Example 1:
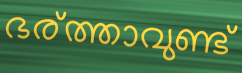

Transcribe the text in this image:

ഭര്ത്താവുണ്ട്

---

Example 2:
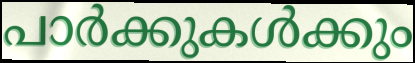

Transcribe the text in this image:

പാർക്കുകൾക്കും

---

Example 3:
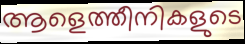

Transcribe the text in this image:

ആളെത്തീനികളുടെ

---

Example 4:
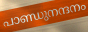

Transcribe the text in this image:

പാണ്ഡുനന്ദനം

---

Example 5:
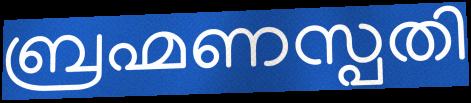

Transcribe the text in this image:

ബ്രഹ്മണസ്പതി